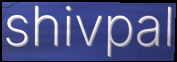
shivpal